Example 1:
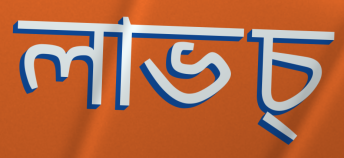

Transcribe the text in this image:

লাভচ্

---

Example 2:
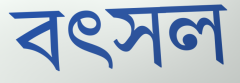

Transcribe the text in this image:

বৎসল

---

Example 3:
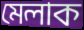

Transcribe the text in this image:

মেলাক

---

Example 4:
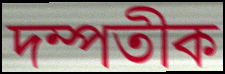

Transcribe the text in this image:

দম্পতীক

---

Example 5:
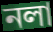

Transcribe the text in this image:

নলা